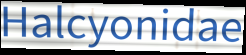
Halcyonidae